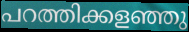
പറത്തിക്കളഞ്ഞു